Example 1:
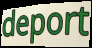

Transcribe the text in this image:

deport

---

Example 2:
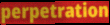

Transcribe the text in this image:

perpetration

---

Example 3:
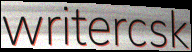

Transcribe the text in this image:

writercsk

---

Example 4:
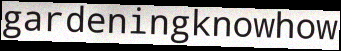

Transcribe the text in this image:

gardeningknowhow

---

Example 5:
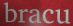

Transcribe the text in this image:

bracu